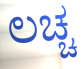
ಲಚ್ಚ